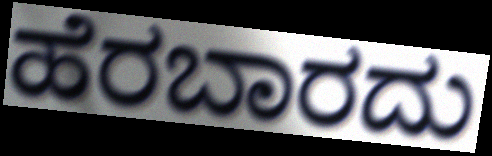
ಹೆರಬಾರದು